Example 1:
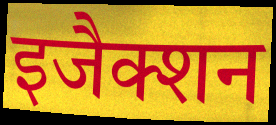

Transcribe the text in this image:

इजैक्शन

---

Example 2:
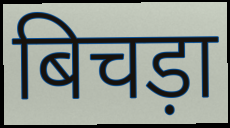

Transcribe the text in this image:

बिचड़ा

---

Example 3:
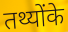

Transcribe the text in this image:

तथ्योंके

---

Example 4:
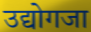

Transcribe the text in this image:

उद्योगजा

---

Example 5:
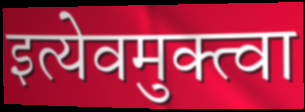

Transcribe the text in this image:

इत्येवमुक्त्वा